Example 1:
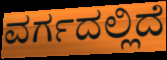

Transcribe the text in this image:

ವರ್ಗದಲ್ಲಿದೆ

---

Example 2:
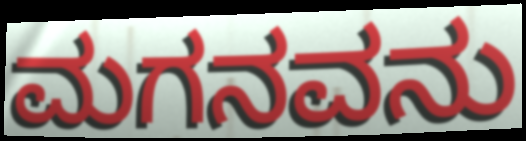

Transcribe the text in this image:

ಮಗನವನು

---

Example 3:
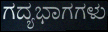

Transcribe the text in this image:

ಗದ್ಯಭಾಗಗಳು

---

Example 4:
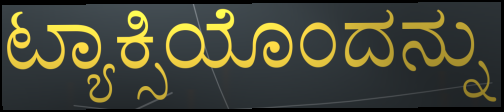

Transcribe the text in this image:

ಟ್ಯಾಕ್ಸಿಯೊಂದನ್ನು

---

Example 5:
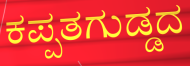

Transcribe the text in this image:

ಕಪ್ಪತಗುಡ್ಡದ